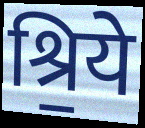
श्रि॒ये